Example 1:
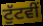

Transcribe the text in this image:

ਟੁੱਟਵੀਂ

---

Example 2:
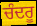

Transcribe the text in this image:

ਚੰਦਰੂ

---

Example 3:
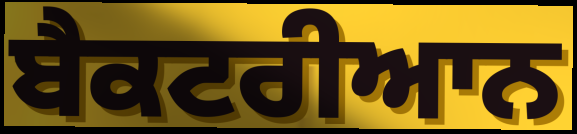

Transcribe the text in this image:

ਬੈਕਟਰੀਆਨ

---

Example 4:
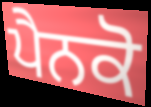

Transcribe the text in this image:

ਪੈਨਕੋ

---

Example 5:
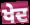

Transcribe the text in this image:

ਖੇਦ